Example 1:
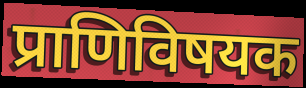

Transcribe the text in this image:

प्राणिविषयक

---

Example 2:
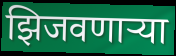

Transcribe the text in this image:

झिजवणाऱ्या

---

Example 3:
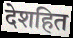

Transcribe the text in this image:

देशहित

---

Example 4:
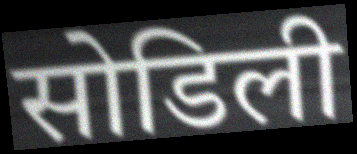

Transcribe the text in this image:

सोडिली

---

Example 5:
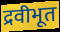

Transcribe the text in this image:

द्रवीभूत